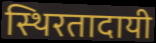
स्थिरतादायी